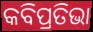
କବିପ୍ରତିଭା